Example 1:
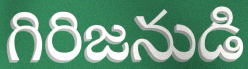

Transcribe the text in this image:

గిరిజనుడి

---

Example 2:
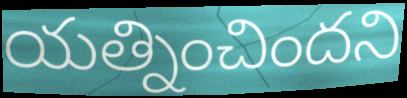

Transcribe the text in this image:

యత్నించిందని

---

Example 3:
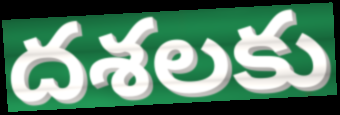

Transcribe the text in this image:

దశలకు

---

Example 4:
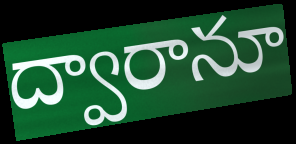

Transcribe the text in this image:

ద్వారానూ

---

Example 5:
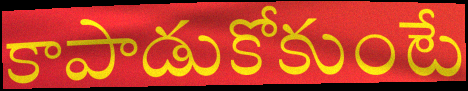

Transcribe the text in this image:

కాపాడుకోకుంటే